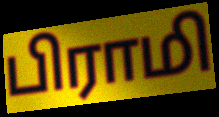
பிராமி